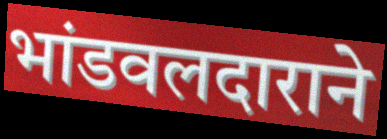
भांडवलदाराने